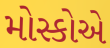
મોસ્કોએ